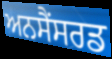
ਅਨਸੈਂਸਰਡ